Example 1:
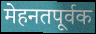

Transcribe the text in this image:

मेहनतपूर्वक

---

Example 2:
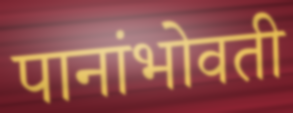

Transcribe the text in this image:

पानांभोवती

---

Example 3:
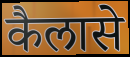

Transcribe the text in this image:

कैलासे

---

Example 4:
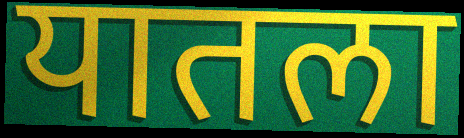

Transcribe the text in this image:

यातला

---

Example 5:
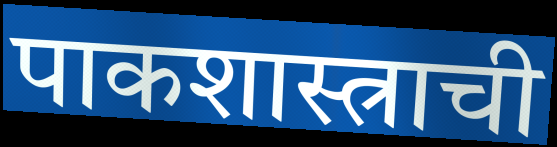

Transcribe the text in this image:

पाकशास्त्राची